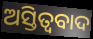
ଅସ୍ତିତ୍ବବାଦ